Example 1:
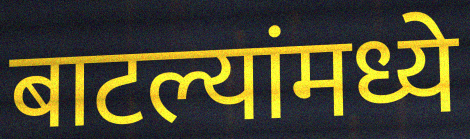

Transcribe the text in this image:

बाटल्यांमध्ये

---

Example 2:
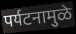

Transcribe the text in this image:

पर्यटनामुळे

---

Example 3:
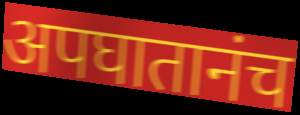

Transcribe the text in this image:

अपघातानंच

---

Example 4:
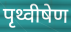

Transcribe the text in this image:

पृथ्वीषेण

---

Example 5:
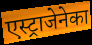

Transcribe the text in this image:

एस्ट्राजेनेका